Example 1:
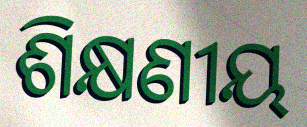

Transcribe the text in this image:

ଶିକ୍ଷଣୀୟ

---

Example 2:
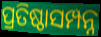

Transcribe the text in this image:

ପ୍ରତିଷ୍ଠାସମ୍ପନ୍ନ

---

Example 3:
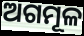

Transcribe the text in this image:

ଅଗମୂଳ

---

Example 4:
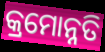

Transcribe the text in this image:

କ୍ରମୋନ୍ନତି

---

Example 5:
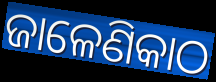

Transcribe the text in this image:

ଜାଳେଣିକାଠ